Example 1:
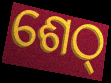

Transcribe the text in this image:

ଶେଠ୍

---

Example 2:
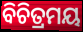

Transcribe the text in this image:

ବିଚିତ୍ରମୟ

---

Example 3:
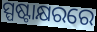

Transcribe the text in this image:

ସ୍ପଷ୍ଟାକ୍ଷରରେ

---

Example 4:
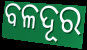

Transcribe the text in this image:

ବଳଦୂର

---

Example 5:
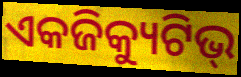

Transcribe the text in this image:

ଏକଜିକ୍ୟୁଟିଭ୍